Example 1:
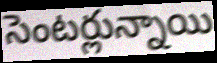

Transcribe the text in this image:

సెంటర్లున్నాయి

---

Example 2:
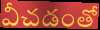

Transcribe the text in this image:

వీచడంతో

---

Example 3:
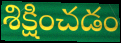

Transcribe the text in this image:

శిక్షించడం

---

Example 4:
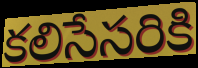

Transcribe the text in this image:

కలిసేసరికి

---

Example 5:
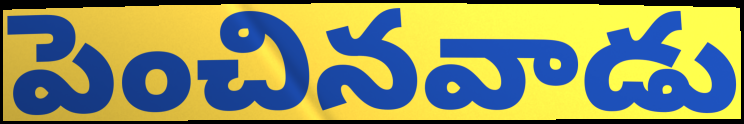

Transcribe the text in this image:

పెంచినవాడు